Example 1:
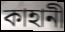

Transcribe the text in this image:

কাহানী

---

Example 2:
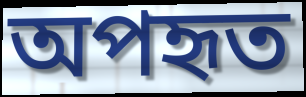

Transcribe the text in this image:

অপহৃত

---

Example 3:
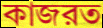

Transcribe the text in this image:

কাজরত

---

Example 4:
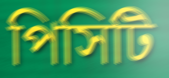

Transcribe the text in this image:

পিসিটি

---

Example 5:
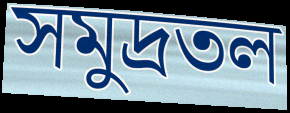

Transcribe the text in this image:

সমুদ্রতল